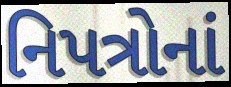
નિપત્રોનાં